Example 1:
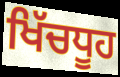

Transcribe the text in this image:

ਖਿੱਚਧੂਹ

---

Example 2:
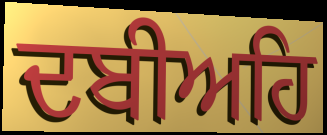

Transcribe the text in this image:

ਦਬੀਅਹਿ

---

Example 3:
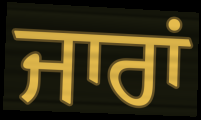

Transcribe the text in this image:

ਜਾਰਾਂ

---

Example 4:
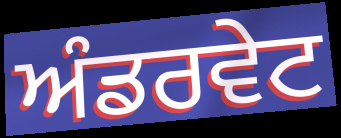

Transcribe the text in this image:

ਅੰਡਰਵੇਟ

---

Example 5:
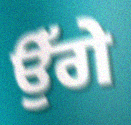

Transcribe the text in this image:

ਉੱਗੇ